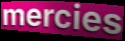
mercies